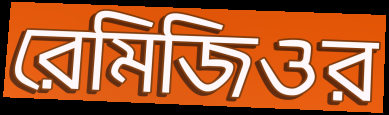
রেমিজিওর